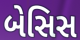
બેસિસ